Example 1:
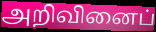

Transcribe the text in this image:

அறிவினைப்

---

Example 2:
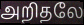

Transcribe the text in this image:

அறிதலே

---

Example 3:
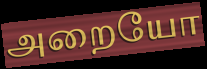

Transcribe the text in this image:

அறையோ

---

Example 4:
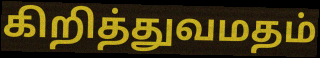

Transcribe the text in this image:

கிறித்துவமதம்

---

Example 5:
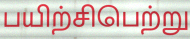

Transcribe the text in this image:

பயிற்சிபெற்று